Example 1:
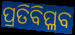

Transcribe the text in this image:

ପ୍ରତିବିପ୍ଳବ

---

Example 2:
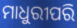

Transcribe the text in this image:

ମାଧୁରୀପରି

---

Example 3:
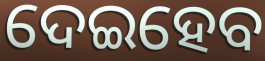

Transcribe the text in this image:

ଦେଇହେବ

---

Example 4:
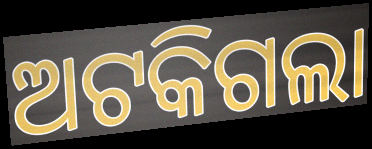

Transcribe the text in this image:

ଅଟକିଗଲା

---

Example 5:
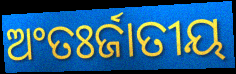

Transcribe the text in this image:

ଅଂତଃର୍ଜାତୀୟ